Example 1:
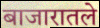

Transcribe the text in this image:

बाजारातले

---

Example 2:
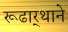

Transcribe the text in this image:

रूढार्थाने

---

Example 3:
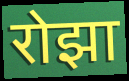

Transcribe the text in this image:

रोझा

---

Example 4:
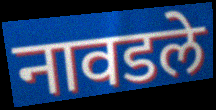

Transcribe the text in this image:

नावडले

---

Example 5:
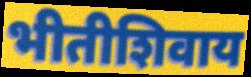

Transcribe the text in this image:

भीतीशिवाय